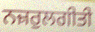
ਨਜ਼ਰੁਲਗੀਤੀ